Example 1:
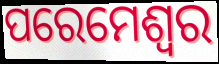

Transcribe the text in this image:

ପରେମେଶ୍ଵର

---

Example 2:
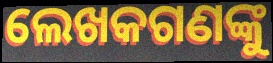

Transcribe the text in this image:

ଲେଖକଗଣଙ୍କୁ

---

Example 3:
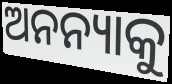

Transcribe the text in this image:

ଅନନ୍ୟାକୁ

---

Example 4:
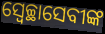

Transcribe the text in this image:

ସ୍ୱେଚ୍ଛାସେବୀଙ୍କ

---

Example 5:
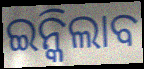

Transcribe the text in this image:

ଇନ୍କିଲାବ